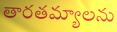
తారతమ్యాలను